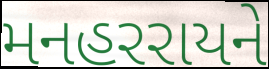
મનહરરાયને